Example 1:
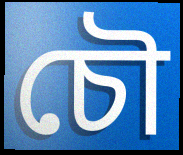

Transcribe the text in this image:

চৌ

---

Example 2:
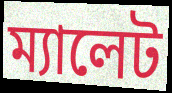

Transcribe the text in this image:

ম্যালেট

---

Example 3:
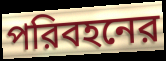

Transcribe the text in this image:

পরিবহনের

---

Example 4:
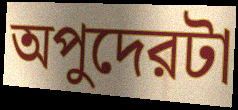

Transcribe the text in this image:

অপুদেরটা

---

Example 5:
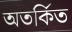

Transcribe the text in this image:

অতর্কিত